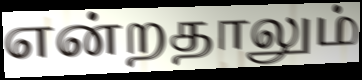
என்றதாலும்